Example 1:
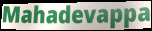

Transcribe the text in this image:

Mahadevappa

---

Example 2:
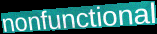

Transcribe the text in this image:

nonfunctional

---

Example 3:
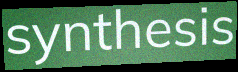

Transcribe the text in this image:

synthesis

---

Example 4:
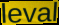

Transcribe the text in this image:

leval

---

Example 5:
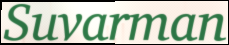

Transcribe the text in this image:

Suvarman